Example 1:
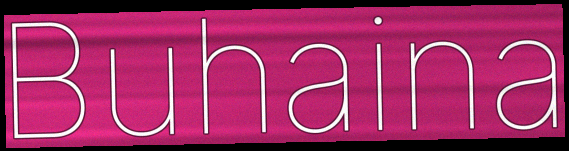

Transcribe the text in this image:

Buhaina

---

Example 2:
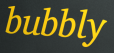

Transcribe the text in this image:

bubbly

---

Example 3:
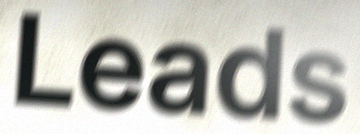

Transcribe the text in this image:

Leads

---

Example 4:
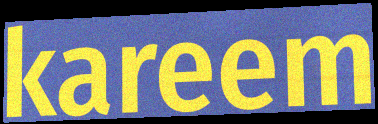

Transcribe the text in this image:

kareem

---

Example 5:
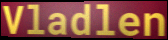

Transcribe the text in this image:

Vladlen